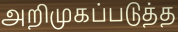
அறிமுகப்படுத்த